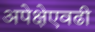
अपेक्षेएवढी